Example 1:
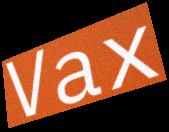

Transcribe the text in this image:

Vax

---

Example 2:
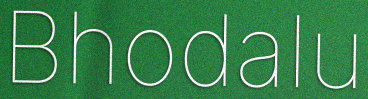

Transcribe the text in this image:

Bhodalu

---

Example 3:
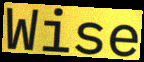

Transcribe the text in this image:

Wise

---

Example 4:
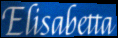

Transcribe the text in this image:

Elisabetta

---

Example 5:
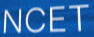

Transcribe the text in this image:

NCET